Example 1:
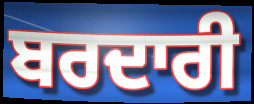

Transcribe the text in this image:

ਬਰਦਾਰੀ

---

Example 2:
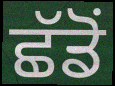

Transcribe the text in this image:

ਛੱਡੋਂ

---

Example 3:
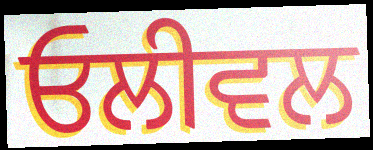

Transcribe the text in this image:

ਓਲੀਵਲ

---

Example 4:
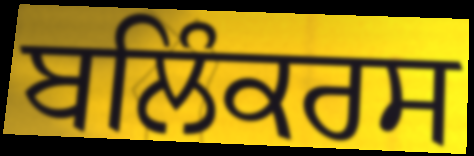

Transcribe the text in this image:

ਬਲਿੰਕਰਸ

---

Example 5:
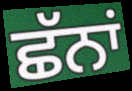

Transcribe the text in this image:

ਛੱਨਾਂ